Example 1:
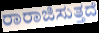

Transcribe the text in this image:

ರಾರಾಜಿಸುತ್ತದೆ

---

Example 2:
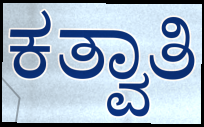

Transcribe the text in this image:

ಕತ್ವಾತಿ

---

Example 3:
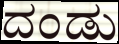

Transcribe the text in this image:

ದಂಡು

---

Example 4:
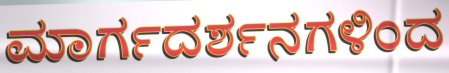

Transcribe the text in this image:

ಮಾರ್ಗದರ್ಶನಗಳಿಂದ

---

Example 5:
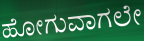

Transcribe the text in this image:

ಹೋಗುವಾಗಲೇ